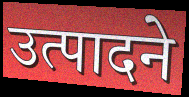
उत्पादने